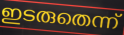
ഇടരുതെന്ന്